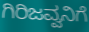
ಗಿರಿಜವ್ವನಿಗೆ